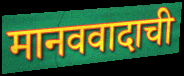
मानववादाची